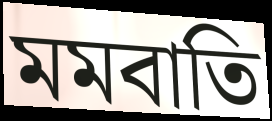
মমবাতি